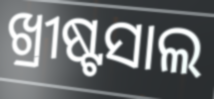
ଖ୍ରୀଷ୍ଟସାଲ